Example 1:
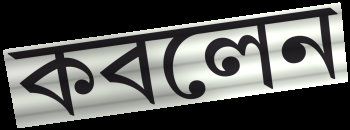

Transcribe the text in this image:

কবলেন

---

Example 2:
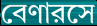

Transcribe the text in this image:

বেণারসে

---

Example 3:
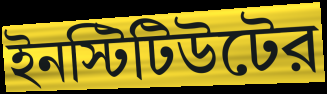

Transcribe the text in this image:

ইনস্টিটিউটের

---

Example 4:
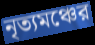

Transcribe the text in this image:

নৃত্যমঞ্চের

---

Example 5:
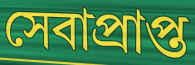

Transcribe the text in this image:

সেবাপ্রাপ্ত